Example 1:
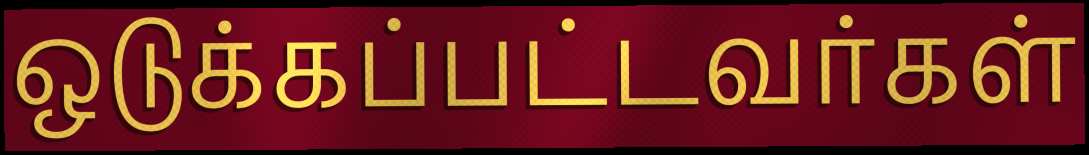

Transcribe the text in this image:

ஒடுக்கப்பட்டவர்கள்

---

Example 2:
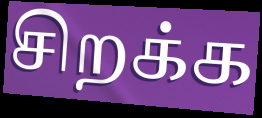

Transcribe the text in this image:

சிறக்க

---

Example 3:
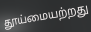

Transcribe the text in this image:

தூய்மையற்றது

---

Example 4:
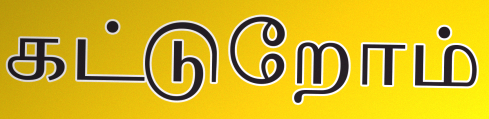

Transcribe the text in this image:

கட்டுறோம்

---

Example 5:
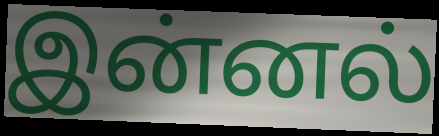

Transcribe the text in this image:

இன்னல்